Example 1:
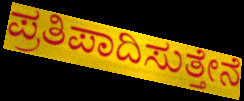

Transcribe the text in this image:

ಪ್ರತಿಪಾದಿಸುತ್ತೇನೆ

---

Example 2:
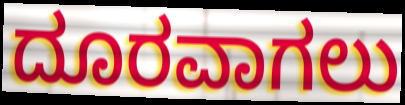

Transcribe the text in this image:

ದೂರವಾಗಲು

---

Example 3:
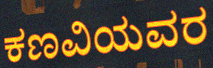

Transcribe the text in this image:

ಕಣವಿಯವರ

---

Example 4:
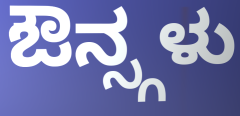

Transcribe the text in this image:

ಔನ್ಸ್ಗಳು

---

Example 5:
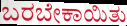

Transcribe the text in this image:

ಬರಬೇಕಾಯಿತು